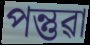
পন্তুৱা